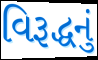
વિરૂદ્ધનું